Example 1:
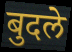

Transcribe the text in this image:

बुदले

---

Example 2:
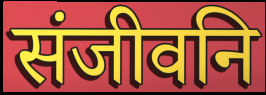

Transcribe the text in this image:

संजीवनि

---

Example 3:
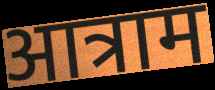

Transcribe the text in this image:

आत्राम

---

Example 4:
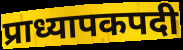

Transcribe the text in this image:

प्राध्यापकपदी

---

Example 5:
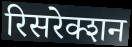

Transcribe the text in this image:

रिसरेक्शन